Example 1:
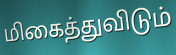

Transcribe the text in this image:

மிகைத்துவிடும்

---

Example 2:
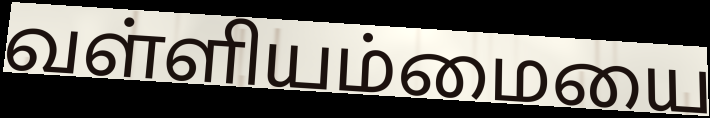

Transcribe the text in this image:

வள்ளியம்மையை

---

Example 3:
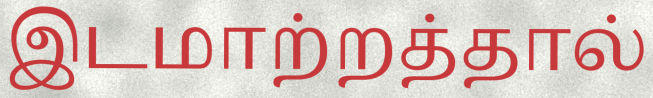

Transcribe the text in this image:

இடமாற்றத்தால்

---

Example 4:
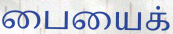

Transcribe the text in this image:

பையைக்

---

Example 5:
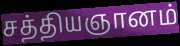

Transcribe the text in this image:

சத்தியஞானம்